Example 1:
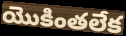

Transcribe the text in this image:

యొకింతలేక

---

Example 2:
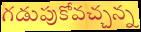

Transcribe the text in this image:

గడుపుకోవచ్చన్న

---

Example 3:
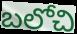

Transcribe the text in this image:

బలోచి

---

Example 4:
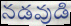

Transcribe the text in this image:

నడవుడి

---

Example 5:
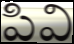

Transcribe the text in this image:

పివి